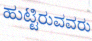
ಹುಟ್ಟಿರುವವರು